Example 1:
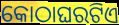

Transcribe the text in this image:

କୋଠାଘରଟିଏ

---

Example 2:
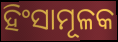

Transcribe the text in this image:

ହିଂସାମୂଳକ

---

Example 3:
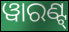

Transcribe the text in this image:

ୱାରଣ୍ଟ୍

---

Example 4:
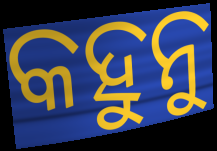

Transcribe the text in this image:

କହୁନୁ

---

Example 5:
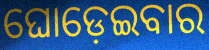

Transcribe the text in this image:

ଘୋଡ଼େଇବାର